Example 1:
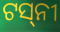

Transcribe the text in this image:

ଟସ୍‌ନୀ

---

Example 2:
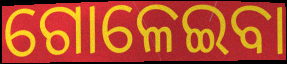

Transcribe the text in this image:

ଗୋଳେଇବା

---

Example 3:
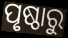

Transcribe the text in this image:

ପୃଷ୍ଠାରୁ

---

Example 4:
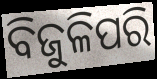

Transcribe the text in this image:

ବିଜୁଳିପରି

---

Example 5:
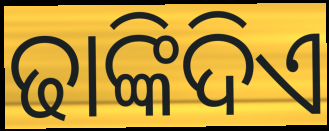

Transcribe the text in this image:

ଢାଙ୍କିଦିଏ